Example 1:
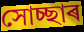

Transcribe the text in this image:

সোচ্ছাৰ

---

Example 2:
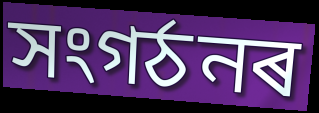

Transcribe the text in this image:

সংগঠনৰ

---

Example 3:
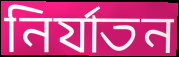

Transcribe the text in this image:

নিৰ্যাতন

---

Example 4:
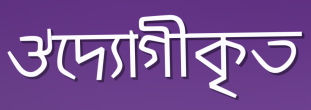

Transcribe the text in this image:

ঔদ্যোগীকৃত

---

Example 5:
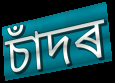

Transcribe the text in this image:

চাঁদৰ